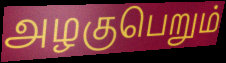
அழகுபெறும்